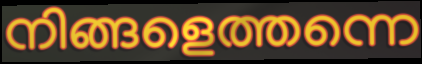
നിങ്ങളെത്തന്നെ